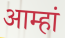
आम्हां